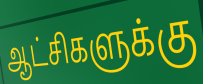
ஆட்சிகளுக்கு